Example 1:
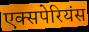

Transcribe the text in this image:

एक्सपेरियंस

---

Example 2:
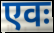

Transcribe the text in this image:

एवः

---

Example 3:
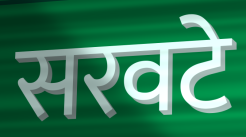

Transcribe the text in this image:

सरवटे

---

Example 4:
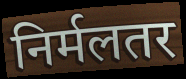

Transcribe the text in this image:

निर्मलतर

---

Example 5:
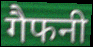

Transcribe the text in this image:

गैफनी